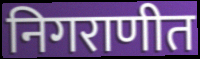
निगराणीत